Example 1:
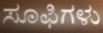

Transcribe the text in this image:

ಸೂಫಿಗಳು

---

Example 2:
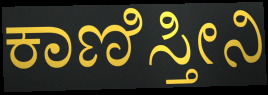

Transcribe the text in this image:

ಕಾಣಿಸ್ತೀನಿ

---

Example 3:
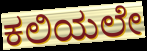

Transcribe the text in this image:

ಕಲಿಯಲೇ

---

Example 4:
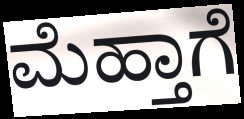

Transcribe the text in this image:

ಮೆಹ್ತಾಗೆ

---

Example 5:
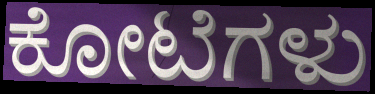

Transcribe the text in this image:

ಕೋಟೆಗಳು